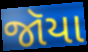
જૉયા